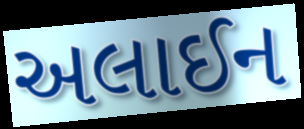
અલાઈન